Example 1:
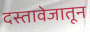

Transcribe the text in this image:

दस्तावेजातून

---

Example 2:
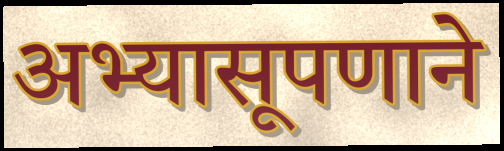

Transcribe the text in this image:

अभ्यासूपणाने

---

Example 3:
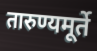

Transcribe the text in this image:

तारुण्यमूर्ते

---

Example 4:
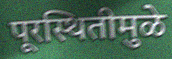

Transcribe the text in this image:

पूरस्थितीमुळे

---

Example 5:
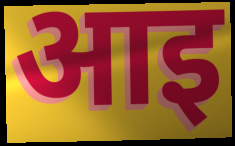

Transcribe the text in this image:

आइ